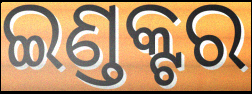
ଇଣ୍ଡକ୍ଟର